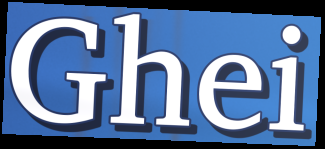
Ghei